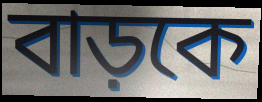
বাড়কে